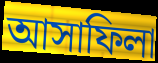
আসাফিলা